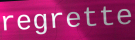
regrette